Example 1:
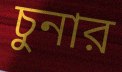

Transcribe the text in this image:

চুনার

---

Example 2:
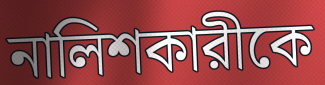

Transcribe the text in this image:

নালিশকারীকে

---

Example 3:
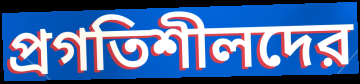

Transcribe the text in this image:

প্রগতিশীলদের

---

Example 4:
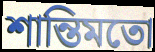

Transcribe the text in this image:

শান্তিমতো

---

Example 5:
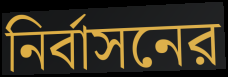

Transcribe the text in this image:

নির্বাসনের